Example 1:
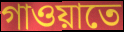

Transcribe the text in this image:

গাওয়াতে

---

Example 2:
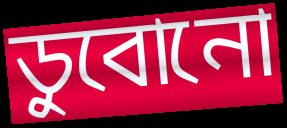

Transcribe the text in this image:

ডুবোনো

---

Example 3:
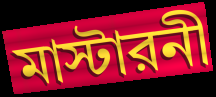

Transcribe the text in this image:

মাস্টারনী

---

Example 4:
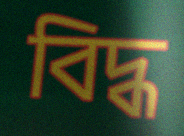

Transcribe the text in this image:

বিদ্ধ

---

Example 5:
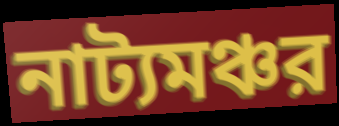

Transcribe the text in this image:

নাট্যমঞ্চর